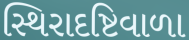
સ્થિરાદષ્ટિવાળા